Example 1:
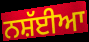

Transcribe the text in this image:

ਨਸ਼ੱਈਆ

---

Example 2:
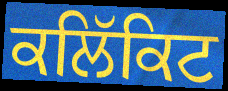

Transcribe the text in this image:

ਕਲਿੱਕਿਟ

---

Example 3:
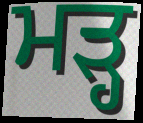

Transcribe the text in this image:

ਮੜ੍ਹ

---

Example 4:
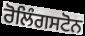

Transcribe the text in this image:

ਰੋਲਿੰਗਸਟੋਨ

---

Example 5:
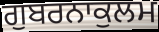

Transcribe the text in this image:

ਗੁਬਰਨਾਕੁਲਮ